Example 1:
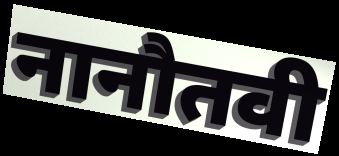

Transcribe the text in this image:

नानौतवी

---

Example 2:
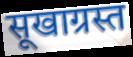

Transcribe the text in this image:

सूखाग्रस्त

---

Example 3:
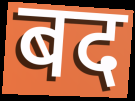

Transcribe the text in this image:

बद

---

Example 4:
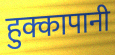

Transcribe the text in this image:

हुक्कापानी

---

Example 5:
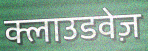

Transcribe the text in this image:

क्लाउडवेज़